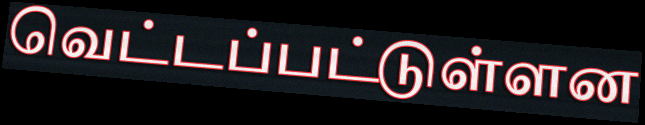
வெட்டப்பட்டுள்ளன